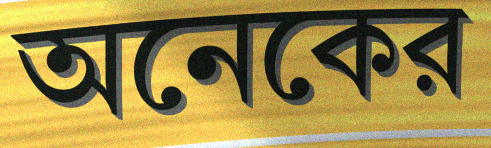
অনেকের